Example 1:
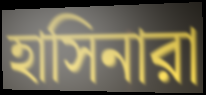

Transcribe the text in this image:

হাসিনারা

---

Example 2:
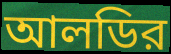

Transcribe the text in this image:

আলডির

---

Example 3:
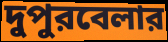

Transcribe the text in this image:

দুপুরবেলার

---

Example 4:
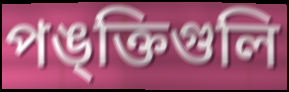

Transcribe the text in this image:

পঙ্ক্তিগুলি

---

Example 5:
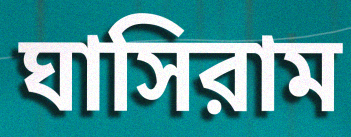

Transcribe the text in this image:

ঘাসিরাম